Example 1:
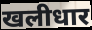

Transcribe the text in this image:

खलीधार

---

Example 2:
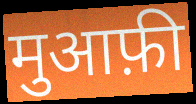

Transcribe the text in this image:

मुआफ़ी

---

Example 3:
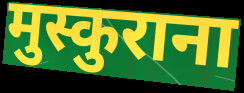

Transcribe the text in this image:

मुस्कुराना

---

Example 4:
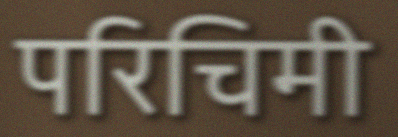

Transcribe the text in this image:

परिचिमी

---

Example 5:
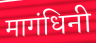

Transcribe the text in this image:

मागंधिनी